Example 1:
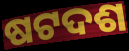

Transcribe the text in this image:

ଷଟଦଶ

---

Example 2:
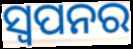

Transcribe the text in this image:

ସ୍ଵପନର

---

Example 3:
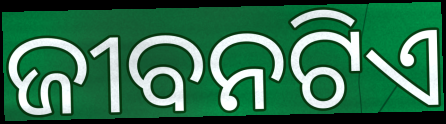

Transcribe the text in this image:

ଜୀବନଟିଏ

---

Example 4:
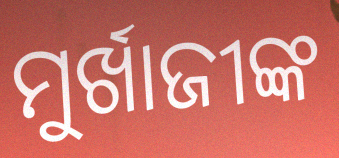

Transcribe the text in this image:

ମୁର୍ଖାଜୀଙ୍କ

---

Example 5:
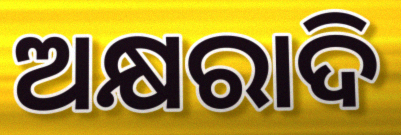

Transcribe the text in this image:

ଅକ୍ଷରାଦି